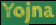
Yojna